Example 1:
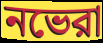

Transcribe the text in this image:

নভেরা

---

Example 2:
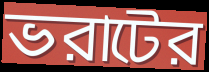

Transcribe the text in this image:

ভরাটের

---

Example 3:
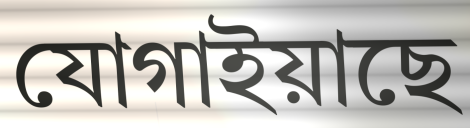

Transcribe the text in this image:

যোগাইয়াছে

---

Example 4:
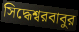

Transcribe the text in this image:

সিদ্ধেশ্বরবাবুর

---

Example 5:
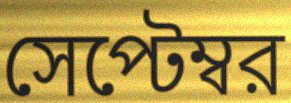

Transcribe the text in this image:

সেপ্টেম্বর